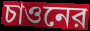
চাওনের